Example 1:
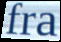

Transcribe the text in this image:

fra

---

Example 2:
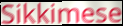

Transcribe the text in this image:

Sikkimese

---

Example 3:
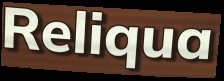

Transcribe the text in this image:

Reliqua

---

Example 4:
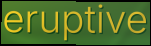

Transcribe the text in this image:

eruptive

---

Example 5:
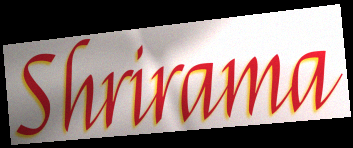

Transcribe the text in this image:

Shrirama